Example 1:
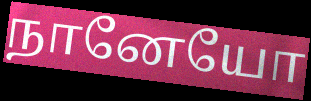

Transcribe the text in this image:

நானேயோ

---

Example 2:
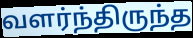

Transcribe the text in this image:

வளர்ந்திருந்த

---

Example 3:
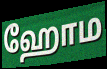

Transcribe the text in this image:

ஹோம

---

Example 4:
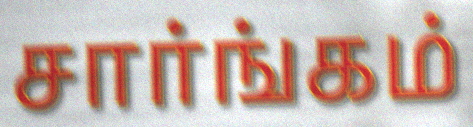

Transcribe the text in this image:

சார்ங்கம்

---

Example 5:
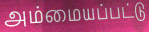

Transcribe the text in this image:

அம்மையப்பட்டு